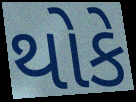
થોકે